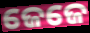
ଜେଜେ